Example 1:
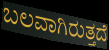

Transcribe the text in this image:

ಬಲವಾಗಿರುತ್ತದೆ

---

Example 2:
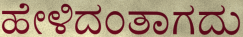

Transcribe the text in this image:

ಹೇಳಿದಂತಾಗದು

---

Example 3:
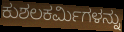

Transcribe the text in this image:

ಕುಶಲಕರ್ಮಿಗಳನ್ನು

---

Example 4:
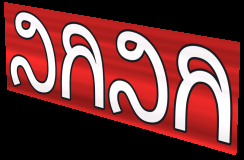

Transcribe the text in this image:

ನಿಗಿನಿಗಿ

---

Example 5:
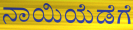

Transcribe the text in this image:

ನಾಯಿಯೆಡೆಗೆ